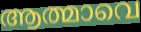
ആത്മാവെ